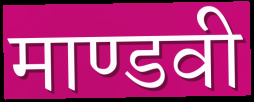
माण्डवी